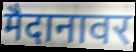
मैदानावर